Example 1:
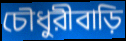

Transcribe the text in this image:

চৌধুরীবাড়ি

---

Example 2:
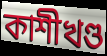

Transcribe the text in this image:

কাশীখণ্ড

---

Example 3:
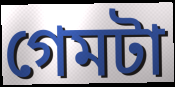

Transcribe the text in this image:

গেমটা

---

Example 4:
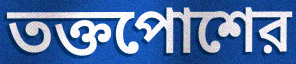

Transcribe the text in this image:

তক্তপোশের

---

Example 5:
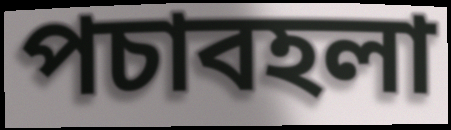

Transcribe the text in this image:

পচাবহলা